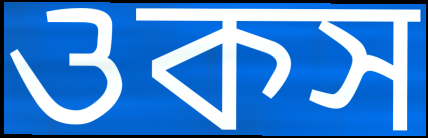
ওকস